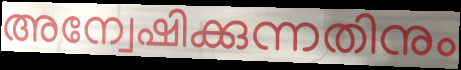
അന്വേഷിക്കുന്നതിനും